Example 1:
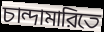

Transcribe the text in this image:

চান্দামারিতে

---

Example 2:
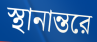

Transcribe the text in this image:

স্থানান্তরে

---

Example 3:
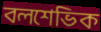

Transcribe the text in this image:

বলশেভিক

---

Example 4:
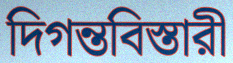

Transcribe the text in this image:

দিগন্তবিস্তারী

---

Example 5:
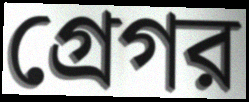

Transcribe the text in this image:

গ্রেগর